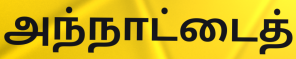
அந்நாட்டைத்